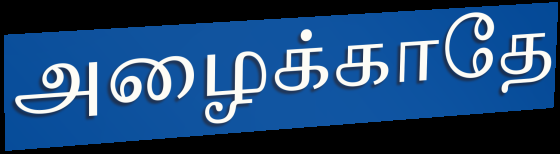
அழைக்காதே